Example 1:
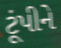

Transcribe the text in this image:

ટૂંપીને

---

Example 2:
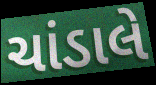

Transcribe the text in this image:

ચાંડાલે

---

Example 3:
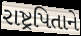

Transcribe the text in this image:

રાષ્ટ્રપિતાને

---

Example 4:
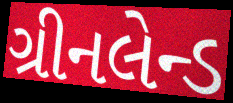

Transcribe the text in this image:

ગ્રીનલેન્ડ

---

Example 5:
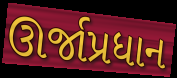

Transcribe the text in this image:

ઊર્જાપ્રધાન